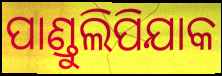
ପାଣ୍ଡୁଲିପିଯାକ